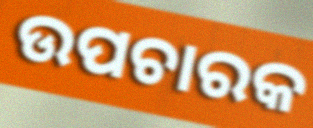
ଉପଚାରକ